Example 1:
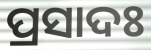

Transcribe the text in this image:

ପ୍ରସାଦଃ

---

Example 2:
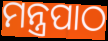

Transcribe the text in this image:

ମନ୍ତ୍ରପାଠ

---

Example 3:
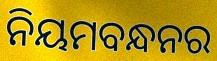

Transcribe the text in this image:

ନିୟମବନ୍ଧନର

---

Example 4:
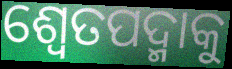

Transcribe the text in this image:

ଶ୍ୱେତପଦ୍ମାକୁ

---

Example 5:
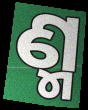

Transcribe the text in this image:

ଣ୍ମ